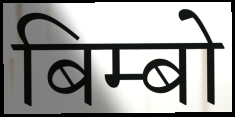
बिम्बो